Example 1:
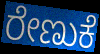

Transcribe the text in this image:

ರೇಣುಕೆ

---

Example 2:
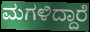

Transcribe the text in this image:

ಮಗಳಿದ್ದಾರೆ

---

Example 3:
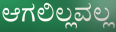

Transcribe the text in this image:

ಆಗಲಿಲ್ಲವಲ್ಲ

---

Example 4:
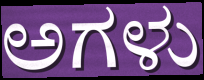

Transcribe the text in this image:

ಅಗಳು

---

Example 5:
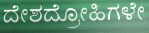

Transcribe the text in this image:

ದೇಶದ್ರೋಹಿಗಳೇ